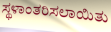
ಸ್ಥಳಾಂತರಿಸಲಾಯಿತು